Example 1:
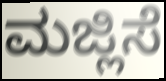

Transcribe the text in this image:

ಮಜ್ಲಿಸೆ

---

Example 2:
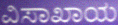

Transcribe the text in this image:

ವಿಸಾಖಾಯ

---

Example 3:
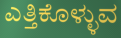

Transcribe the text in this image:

ಎತ್ತಿಕೊಳ್ಳುವ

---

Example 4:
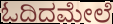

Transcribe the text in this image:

ಓದಿದಮೇಲೆ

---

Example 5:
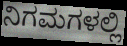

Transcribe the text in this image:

ನಿಗಮಗಳಲ್ಲಿ